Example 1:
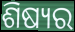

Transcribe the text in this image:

ଶିଷ୍ୟର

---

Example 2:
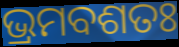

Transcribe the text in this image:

ଭ୍ରମବଶତଃ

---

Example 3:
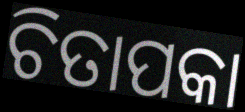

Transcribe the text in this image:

ଚିତାପକା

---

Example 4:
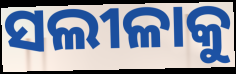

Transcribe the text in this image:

ସଲୀଳାକୁ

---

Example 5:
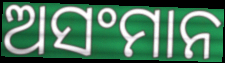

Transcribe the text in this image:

ଅସଂମାନ